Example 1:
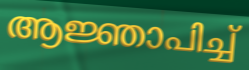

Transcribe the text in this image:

ആജ്ഞാപിച്ച്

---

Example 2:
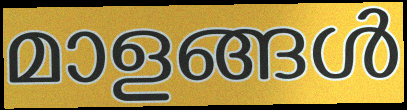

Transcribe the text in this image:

മാളങ്ങൾ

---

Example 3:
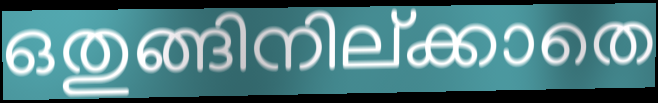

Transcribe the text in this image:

ഒതുങ്ങിനില്ക്കാതെ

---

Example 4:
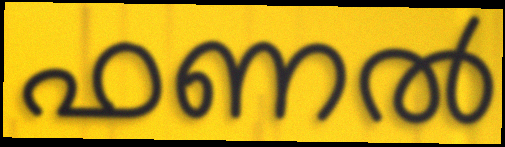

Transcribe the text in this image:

ഫണൽ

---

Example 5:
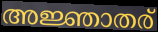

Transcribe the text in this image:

അജ്ഞാതര്